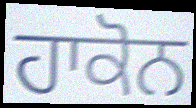
ਹਾਕੋਨ